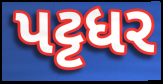
પટ્ટધર